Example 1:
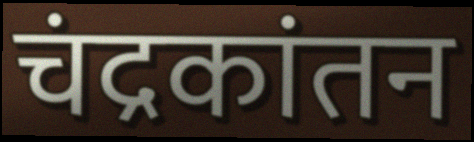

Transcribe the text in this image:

चंद्रकांतन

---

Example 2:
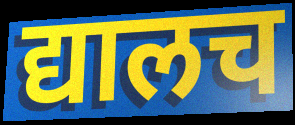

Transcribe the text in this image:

द्यालच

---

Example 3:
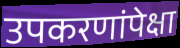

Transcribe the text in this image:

उपकरणांपेक्षा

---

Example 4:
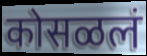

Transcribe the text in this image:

कोसळलं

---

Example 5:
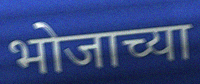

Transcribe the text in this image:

भोजाच्या